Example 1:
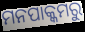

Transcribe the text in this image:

ମନପାକ୍କମରୁ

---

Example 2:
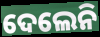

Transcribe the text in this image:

ଦେଲେନି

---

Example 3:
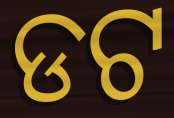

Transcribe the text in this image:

ଡଟ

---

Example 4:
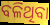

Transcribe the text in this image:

ବଳିଥିବା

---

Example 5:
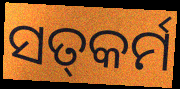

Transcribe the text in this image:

ସତ୍‍କର୍ମ